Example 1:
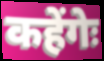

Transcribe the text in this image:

कहेंगेः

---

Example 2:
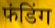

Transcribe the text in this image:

फंडिंग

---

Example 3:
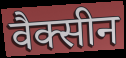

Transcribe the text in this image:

वैक्सीन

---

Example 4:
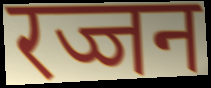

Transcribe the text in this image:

रज्जन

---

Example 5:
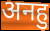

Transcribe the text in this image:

अनहु